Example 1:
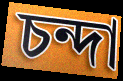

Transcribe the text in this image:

চন্দা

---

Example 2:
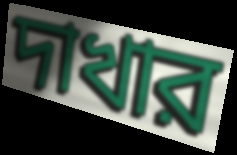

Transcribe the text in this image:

দাখার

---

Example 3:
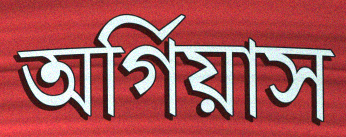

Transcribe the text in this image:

অর্গিয়াস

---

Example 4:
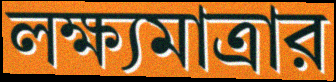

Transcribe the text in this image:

লক্ষ্যমাত্রার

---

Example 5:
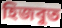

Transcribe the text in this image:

হিজবুত